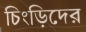
চিংড়িদের